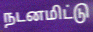
நடனமிட்டு